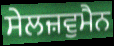
ਸੇਲਜ਼ਵੁਮੈਨ